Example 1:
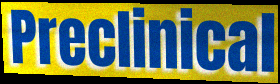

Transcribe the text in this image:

Preclinical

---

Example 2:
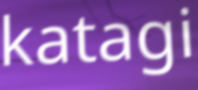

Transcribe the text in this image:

katagi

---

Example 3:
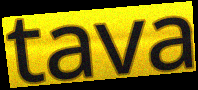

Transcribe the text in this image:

tava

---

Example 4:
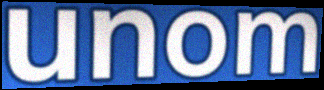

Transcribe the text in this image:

unom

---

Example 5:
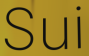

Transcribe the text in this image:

Sui